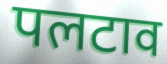
पलटाव